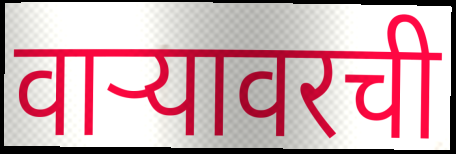
वार्‍यावरची